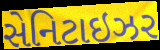
સેનિટાઇઝર